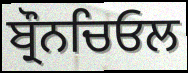
ਬ੍ਰੌਨਚਿਓਲ